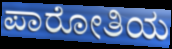
ಪಾರೋತಿಯ